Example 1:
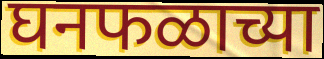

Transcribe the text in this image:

घनफळाच्या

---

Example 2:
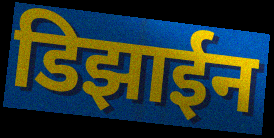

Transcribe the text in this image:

डिझाईन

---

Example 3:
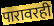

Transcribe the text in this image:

पारावरही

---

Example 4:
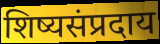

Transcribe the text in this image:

शिष्यसंप्रदाय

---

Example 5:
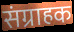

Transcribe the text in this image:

संग्राहक